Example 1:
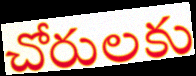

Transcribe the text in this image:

చోరులకు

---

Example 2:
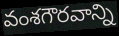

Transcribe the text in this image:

వంశగౌరవాన్ని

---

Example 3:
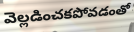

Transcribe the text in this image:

వెల్లడించకపోవడంతో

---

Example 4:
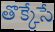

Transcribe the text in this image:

తొక్కేసే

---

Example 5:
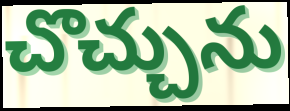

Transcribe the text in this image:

చొచ్చును